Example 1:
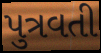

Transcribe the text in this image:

પુત્રવતી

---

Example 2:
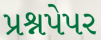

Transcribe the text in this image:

પ્રશ્નપેપર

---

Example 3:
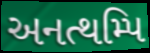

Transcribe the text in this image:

અનત્થમ્પિ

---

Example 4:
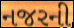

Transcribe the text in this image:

નજરની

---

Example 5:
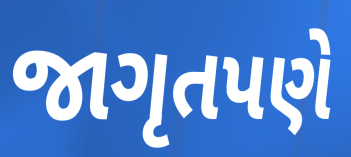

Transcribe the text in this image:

જાગૃતપણે